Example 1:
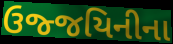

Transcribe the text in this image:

ઉજ્જયિનીના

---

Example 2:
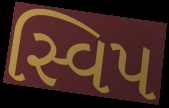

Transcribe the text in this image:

સ્વિપ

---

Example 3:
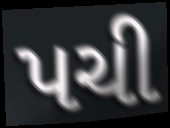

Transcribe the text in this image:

પચી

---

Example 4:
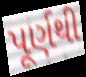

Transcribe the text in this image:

પૂર્ણથી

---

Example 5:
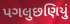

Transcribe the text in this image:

પગલુછણિયું